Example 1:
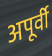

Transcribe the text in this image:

अपूर्वी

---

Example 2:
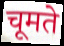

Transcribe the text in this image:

चूमते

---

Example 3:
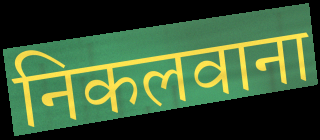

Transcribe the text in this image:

निकलवाना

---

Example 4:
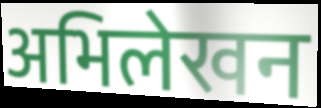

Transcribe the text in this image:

अभिलेखन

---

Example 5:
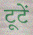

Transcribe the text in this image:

टूटें